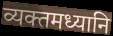
व्यक्तमध्यानि